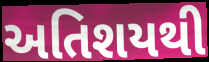
અતિશયથી